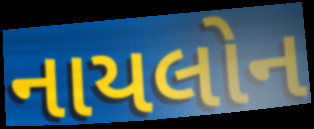
નાયલોન